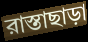
রাস্তাছাড়া